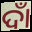
ଦାଁ